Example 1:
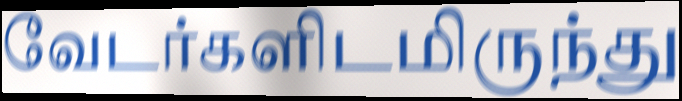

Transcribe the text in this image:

வேடர்களிடமிருந்து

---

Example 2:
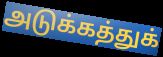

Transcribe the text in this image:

அடுக்கத்துக்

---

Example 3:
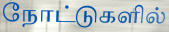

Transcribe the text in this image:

நோட்டுகளில்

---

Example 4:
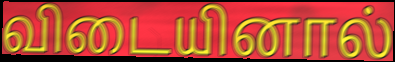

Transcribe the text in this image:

விடையினால்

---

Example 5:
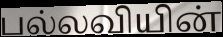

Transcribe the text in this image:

பல்லவியின்